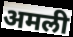
अमली